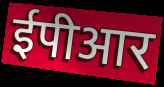
ईपीआर